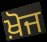
ਖ਼ੋਜ